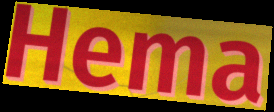
Hema